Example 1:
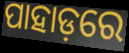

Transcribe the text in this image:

ପାହାଡ଼ରେ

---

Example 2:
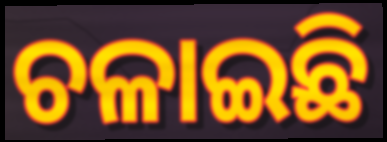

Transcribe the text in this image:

ଚଳାଇଛି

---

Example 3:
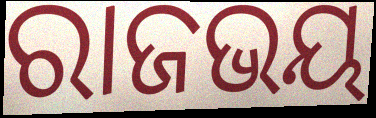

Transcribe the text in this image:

ରାଜଭୟ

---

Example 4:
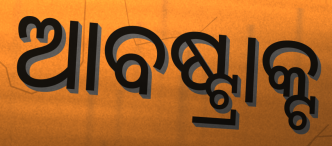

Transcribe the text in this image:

ଆବଷ୍ଟ୍ରାକ୍ଟ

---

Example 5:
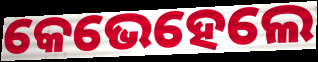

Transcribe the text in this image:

କେଭେହେଲେ